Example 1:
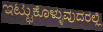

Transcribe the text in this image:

ಇಟ್ಟುಕೊಳ್ಳುವುದರಲ್ಲಿ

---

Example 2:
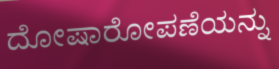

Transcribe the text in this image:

ದೋಷಾರೋಪಣೆಯನ್ನು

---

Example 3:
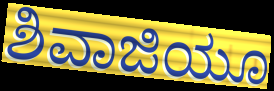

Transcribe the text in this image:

ಶಿವಾಜಿಯೂ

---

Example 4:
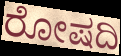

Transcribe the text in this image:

ರೋಷದಿ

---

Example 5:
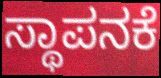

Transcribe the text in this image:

ಸ್ಥಾಪನಕೆ